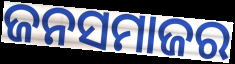
ଜନସମାଜର